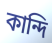
কান্দি